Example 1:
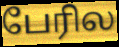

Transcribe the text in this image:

பேரில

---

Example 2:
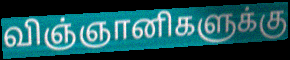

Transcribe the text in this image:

விஞ்ஞானிகளுக்கு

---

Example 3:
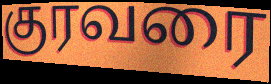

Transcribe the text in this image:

குரவரை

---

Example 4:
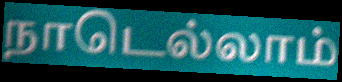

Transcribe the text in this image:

நாடெல்லாம்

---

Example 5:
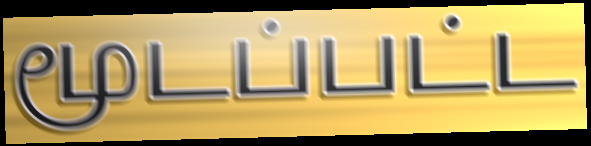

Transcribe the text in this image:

மூடப்பட்ட